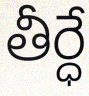
తీర్ధే